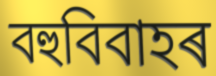
বহুবিবাহৰ